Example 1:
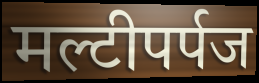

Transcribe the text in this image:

मल्टीपर्पज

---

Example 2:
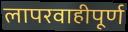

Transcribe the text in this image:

लापरवाहीपूर्ण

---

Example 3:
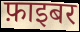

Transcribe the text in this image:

फ़ाइबर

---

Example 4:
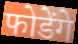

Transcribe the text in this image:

फोडेंगे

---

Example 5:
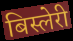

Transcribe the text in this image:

बिस्लेरी